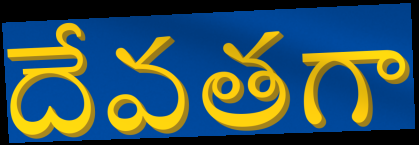
దేవతగా